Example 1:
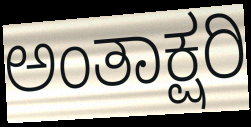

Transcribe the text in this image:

ಅಂತಾಕ್ಷರಿ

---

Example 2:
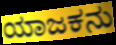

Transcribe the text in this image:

ಯಾಜಕನು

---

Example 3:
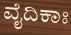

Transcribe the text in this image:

ವೈದಿಕಾಃ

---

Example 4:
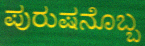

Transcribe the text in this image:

ಪುರುಷನೊಬ್ಬ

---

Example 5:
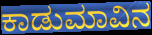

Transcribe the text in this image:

ಕಾಡುಮಾವಿನ